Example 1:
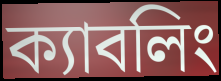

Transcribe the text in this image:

ক্যাবলিং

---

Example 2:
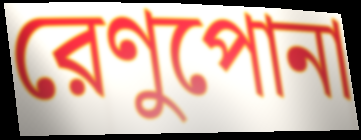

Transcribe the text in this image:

রেণুপোনা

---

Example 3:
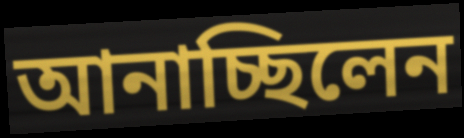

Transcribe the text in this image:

আনাচ্ছিলেন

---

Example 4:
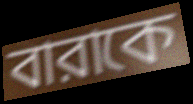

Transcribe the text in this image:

বারাকে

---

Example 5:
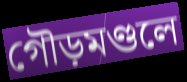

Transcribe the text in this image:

গৌড়মণ্ডলে